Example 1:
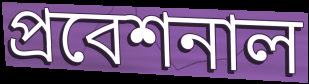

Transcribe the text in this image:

প্রবেশনাল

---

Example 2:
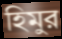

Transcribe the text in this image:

হিমুর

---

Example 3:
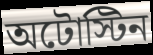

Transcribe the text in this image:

অটোস্টিন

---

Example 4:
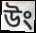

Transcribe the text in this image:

উং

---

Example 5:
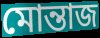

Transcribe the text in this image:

মোন্তাজ